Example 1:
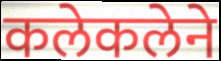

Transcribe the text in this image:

कलेकलेने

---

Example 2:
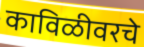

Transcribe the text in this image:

काविळीवरचे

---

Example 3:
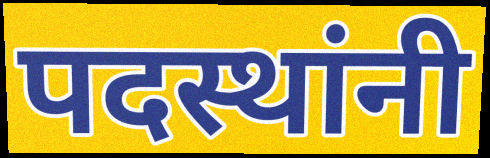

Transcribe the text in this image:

पदस्थांनी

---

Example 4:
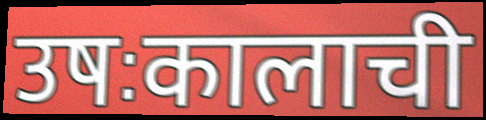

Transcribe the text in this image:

उषःकालाची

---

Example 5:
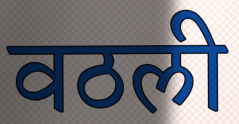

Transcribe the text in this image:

वठली